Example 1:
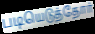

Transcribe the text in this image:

படியெடுத்தோர்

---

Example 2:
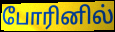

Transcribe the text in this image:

போரினில்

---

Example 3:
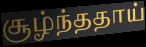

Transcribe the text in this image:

சூழ்ந்ததாய்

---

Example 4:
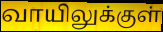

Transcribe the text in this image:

வாயிலுக்குள்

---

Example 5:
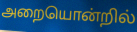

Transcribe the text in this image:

அறையொன்றில்